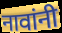
नावांनी